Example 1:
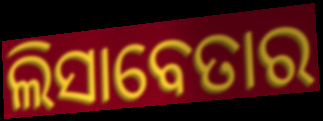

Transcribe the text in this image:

ଲିସାବେତାର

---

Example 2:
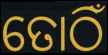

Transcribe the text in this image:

ତୋଠିଁ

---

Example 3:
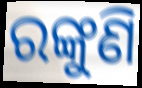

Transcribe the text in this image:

ରଙ୍କୁଣି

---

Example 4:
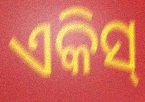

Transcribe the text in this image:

ଏକିସ୍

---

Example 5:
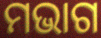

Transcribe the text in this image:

ମଭାଗ